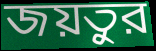
জয়তুর